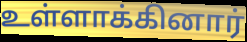
உள்ளாக்கினார்